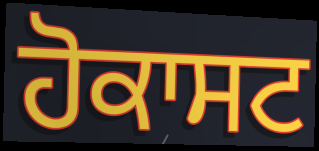
ਹੋਕਾਸਟ